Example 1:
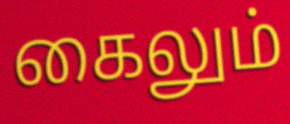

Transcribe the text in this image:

கைலும்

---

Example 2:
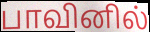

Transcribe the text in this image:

பாவினில்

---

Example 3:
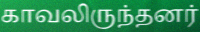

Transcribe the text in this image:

காவலிருந்தனர்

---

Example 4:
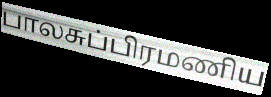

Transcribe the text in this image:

பாலசுப்பிரமணிய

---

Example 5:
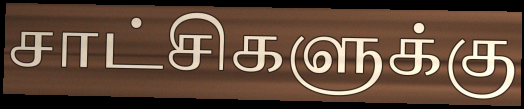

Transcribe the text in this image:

சாட்சிகளுக்கு